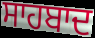
ਸਾਹਬਾਦ